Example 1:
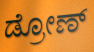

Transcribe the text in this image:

ಡ್ರೋಣ್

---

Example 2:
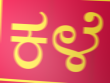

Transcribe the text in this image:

ಕಳೆ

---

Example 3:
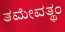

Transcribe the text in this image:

ತಮೇವತ್ಥಂ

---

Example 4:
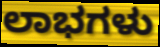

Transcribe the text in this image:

ಲಾಭಗಳು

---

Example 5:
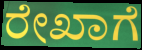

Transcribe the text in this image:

ರೇಖಾಗೆ